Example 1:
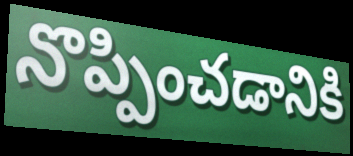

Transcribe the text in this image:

నొప్పించడానికి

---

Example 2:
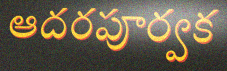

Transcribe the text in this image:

ఆదరపూర్వక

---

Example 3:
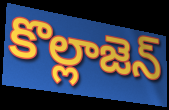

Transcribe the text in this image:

కొల్లాజెన్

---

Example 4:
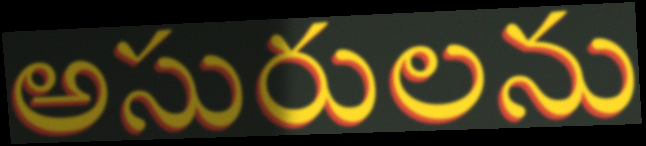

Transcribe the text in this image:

అసురులను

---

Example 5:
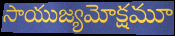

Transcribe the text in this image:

సాయుజ్యమోక్షమూ